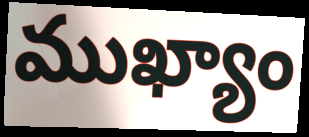
ముఖ్యాం